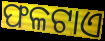
ଫଳଟାଏ